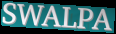
SWALPA